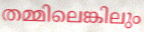
തമ്മിലെങ്കിലും